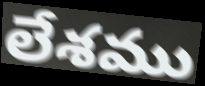
లేశము